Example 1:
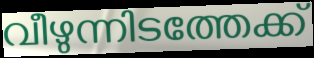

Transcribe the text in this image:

വീഴുന്നിടത്തേക്ക്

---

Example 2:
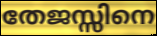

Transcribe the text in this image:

തേജസ്സിനെ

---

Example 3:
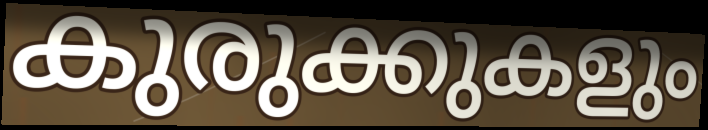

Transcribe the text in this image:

കുരുക്കുകളും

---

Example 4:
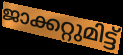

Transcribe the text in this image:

ജാക്കറ്റുമിട്ട്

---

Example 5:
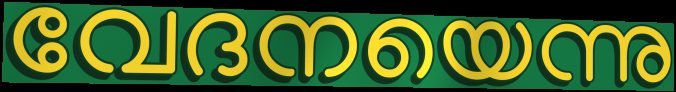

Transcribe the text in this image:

വേദനയെന്നു